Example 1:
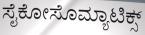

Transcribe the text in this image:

ಸೈಕೋಸೊಮ್ಯಾಟಿಕ್ಸ್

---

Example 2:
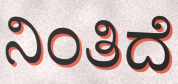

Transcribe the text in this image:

ನಿಂತಿದೆ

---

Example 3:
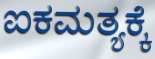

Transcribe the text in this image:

ಐಕಮತ್ಯಕ್ಕೆ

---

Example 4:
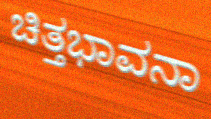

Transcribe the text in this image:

ಚಿತ್ತಭಾವನಾ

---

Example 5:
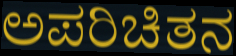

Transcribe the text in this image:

ಅಪರಿಚಿತನ